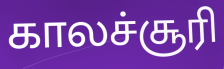
காலச்சூரி